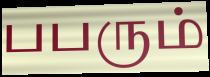
பபரும்